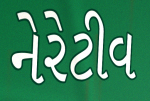
નેરેટીવ